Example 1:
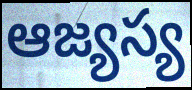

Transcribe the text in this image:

ఆజ్యస్య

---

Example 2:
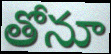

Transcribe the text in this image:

తోనూ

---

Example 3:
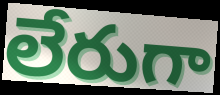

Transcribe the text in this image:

లేరుగా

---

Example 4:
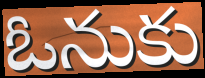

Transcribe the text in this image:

ఓనుకు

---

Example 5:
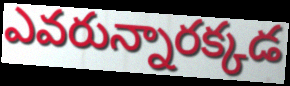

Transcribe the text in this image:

ఎవరున్నారక్కడ